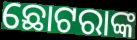
ଛୋଟରାଙ୍କ